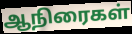
ஆநிரைகள்